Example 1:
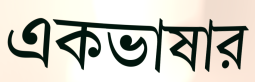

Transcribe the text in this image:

একভাষার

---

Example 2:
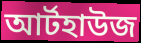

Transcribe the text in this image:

আর্টহাউজ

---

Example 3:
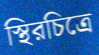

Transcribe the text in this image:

স্থিরচিত্রে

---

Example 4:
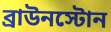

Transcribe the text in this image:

ব্রাউনস্টোন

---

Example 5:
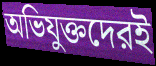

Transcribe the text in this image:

অভিযুক্তদেরই